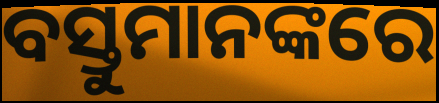
ବସ୍ତୁମାନଙ୍କରେ